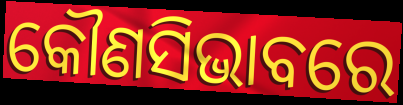
କୌଣସିଭାବରେ